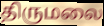
திருமலை